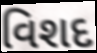
વિશદ